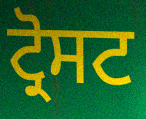
ਟ੍ਰੋਸਟ